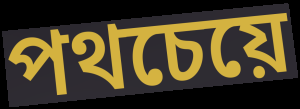
পথচেয়ে